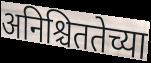
अनिश्चिततेच्या